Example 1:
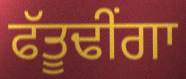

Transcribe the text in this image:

ਫੱਤੂਢੀਂਗਾ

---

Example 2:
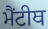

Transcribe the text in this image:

ਮੈਂਟੀਥ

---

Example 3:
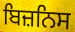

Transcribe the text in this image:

ਬਿਜ਼ਨਿਸ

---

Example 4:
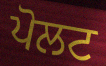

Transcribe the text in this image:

ਪੋਲਟ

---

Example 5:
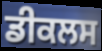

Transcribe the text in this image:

ਡੀਕਲਸ